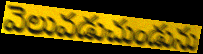
వెలువడుచుండును